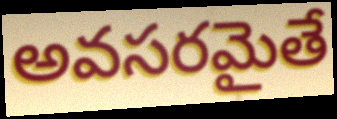
అవసరమైతే